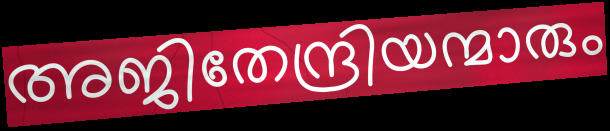
അജിതേന്ദ്രിയന്മാരും